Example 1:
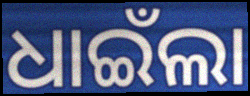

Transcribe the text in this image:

ଧାଇଁଲା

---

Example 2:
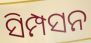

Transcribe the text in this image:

ସିମ୍ପସନ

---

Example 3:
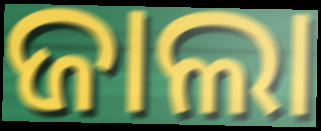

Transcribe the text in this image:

ଜାଲା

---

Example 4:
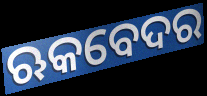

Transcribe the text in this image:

ଋକବେଦର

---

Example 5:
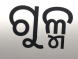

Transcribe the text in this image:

ଗୁଳ୍ମ